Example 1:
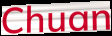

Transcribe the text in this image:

Chuan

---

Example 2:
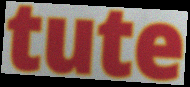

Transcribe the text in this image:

tute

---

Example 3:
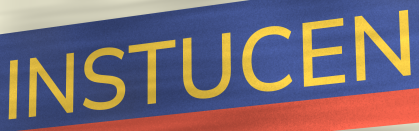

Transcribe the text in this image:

INSTUCEN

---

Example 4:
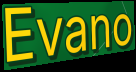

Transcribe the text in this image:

Evano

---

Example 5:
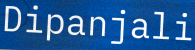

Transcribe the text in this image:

Dipanjali